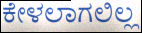
ಕೇಳಲಾಗಲಿಲ್ಲ